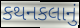
કથનકલાનું